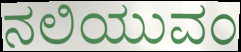
ನಲಿಯುವಂ